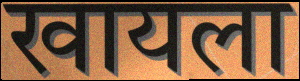
खायला